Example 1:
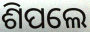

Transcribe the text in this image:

ଶିପଲେ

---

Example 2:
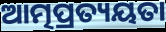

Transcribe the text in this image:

ଆତ୍ମପ୍ରତ୍ୟୟତା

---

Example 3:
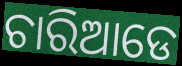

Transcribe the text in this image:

ଚାରିଆଡେ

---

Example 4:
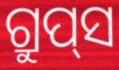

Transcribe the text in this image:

ଗ୍ରୁପ୍‌ସ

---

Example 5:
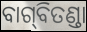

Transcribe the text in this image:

ବାଗ୍‌ବିତଣ୍ଡା